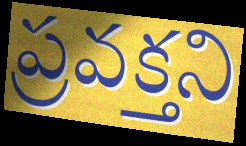
ప్రవక్తని